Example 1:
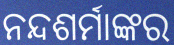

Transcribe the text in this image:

ନନ୍ଦଶର୍ମାଙ୍କର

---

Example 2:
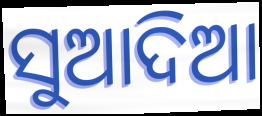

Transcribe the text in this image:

ସୁଆଦିଆ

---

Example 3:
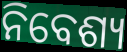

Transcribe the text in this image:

ନିବେଶ୍ୟ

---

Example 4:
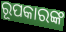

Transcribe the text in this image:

ରୂପକାରଙ୍କ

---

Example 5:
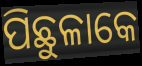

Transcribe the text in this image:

ପିଛୁଳାକେ